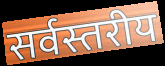
सर्वस्तरीय